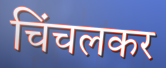
चिंचलकर